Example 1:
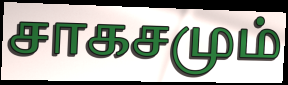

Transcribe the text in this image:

சாகசமும்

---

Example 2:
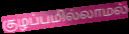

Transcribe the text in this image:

குழப்பமில்லாமல்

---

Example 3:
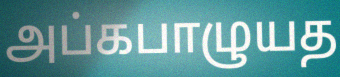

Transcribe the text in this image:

அப்கபாழுயத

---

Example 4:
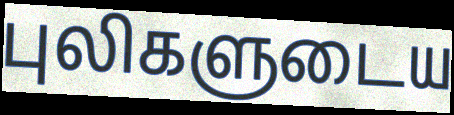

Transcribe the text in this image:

புலிகளுடைய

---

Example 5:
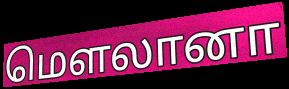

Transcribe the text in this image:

மௌலானா